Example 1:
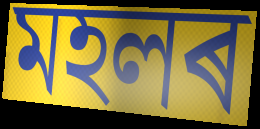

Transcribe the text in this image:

মহলৰ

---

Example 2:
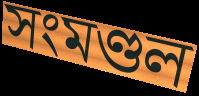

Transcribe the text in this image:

সংমণ্ডল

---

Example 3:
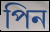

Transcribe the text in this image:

পিন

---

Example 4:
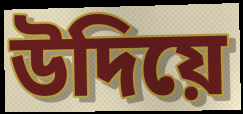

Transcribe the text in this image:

উদিয়ে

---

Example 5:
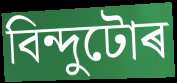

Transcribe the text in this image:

বিন্দুটোৰ